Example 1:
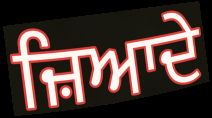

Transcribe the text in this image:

ਜ਼ਿਆਦੇ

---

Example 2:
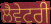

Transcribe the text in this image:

ਲੈਵੇਟਰੀ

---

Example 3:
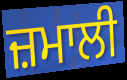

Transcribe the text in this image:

ਜ਼ਮਾਲੀ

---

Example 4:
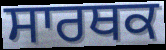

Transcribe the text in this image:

ਸਾਰਥਕ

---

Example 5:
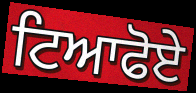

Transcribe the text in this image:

ਟਿਆਫੋਏ